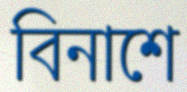
বিনাশে